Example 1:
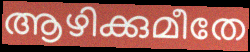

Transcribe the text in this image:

ആഴിക്കുമീതേ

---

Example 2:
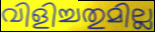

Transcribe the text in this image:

വിളിച്ചതുമില്ല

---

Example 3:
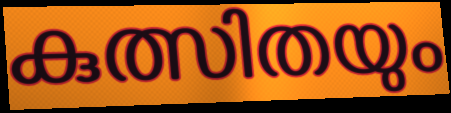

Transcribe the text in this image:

കുത്സിതയും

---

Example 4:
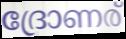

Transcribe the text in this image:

ദ്രോണര്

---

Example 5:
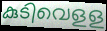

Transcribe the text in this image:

കുടിവെളള